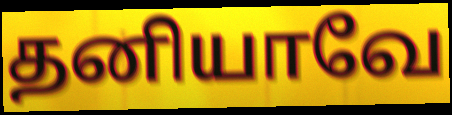
தனியாவே